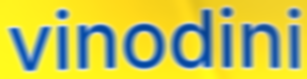
vinodini